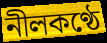
নীলকণ্ঠে